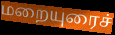
மறையுரைச்